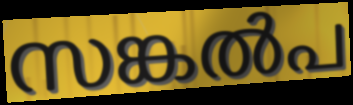
സങ്കൽപ